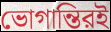
ভোগান্তিরই